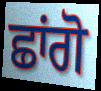
ਛਾਂਗੋ